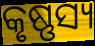
କୃଷ୍ଣସ୍ୟ